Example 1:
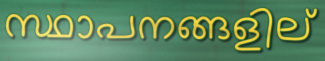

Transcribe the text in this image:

സ്ഥാപനങ്ങളില്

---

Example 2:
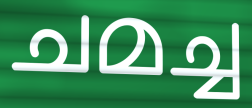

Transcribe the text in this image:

ചമച്ച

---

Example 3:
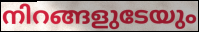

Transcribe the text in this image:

നിറങ്ങളുടേയും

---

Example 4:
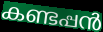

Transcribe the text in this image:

കണ്ടപ്പൻ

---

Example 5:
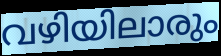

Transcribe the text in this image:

വഴിയിലാരും